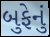
બુફેનું